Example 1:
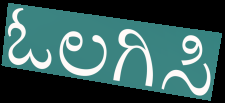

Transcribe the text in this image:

ಓಲಗಿಸಿ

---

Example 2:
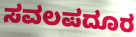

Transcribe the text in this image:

ಸವಲಪದೂರ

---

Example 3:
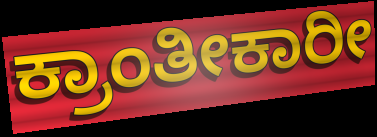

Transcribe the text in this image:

ಕ್ರಾಂತೀಕಾರೀ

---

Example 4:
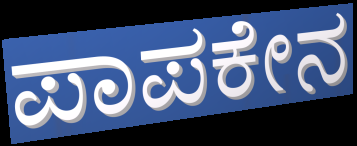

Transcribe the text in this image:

ಪಾಪಕೇನ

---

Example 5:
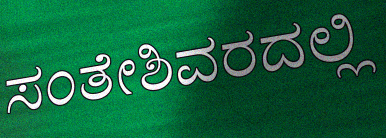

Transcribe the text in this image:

ಸಂತೇಶಿವರದಲ್ಲಿ